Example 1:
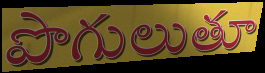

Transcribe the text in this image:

పొగులుతూ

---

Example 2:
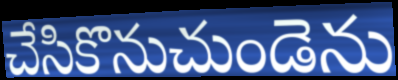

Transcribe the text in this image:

చేసికొనుచుండెను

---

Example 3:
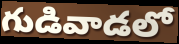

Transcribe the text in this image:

గుడివాడలో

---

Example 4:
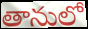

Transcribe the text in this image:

తానులో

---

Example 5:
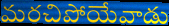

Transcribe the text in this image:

మరచిపోయేవాడు